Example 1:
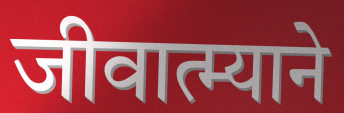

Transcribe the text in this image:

जीवात्म्याने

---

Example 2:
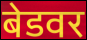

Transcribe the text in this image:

बेडवर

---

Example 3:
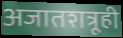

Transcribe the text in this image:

अजातशत्रूही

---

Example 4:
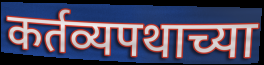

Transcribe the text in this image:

कर्तव्यपथाच्या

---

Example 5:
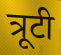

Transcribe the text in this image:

त्रूटी